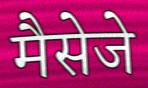
मैसेजे